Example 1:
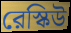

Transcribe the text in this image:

রেস্কিউ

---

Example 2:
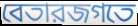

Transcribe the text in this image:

বেতারজগতে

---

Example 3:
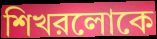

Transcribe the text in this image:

শিখরলোকে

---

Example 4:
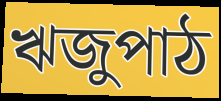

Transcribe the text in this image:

ঋজুপাঠ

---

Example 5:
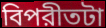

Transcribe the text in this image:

বিপরীতটা